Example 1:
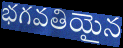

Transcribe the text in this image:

భగవతియైన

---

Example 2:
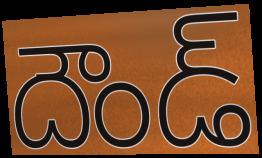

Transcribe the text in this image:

దౌండ్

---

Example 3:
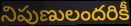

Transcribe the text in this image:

నిపుణులందరికీ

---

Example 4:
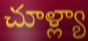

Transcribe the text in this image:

చూళ్ల్యా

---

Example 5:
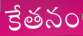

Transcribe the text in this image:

కేతనం